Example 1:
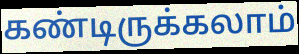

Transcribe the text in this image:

கண்டிருக்கலாம்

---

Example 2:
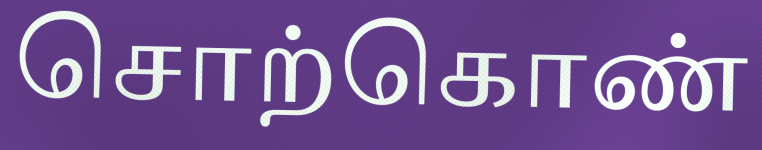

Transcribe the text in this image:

சொற்கொண்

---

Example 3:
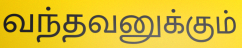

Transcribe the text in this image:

வந்தவனுக்கும்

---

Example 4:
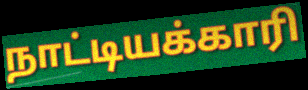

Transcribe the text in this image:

நாட்டியக்காரி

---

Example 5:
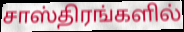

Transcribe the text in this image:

சாஸ்திரங்களில்